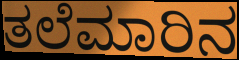
ತಲೆಮಾರಿನ